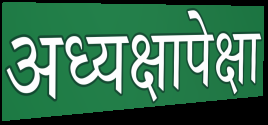
अध्यक्षापेक्षा